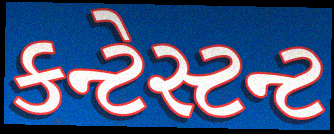
કન્ટેસ્ટન્ટ